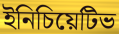
ইনিচিয়েটিভ